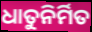
ଧାତୁନିର୍ମିତ